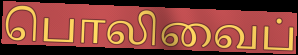
பொலிவைப்